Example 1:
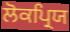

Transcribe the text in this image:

ਲੋਕਪ੍ਰਿਯ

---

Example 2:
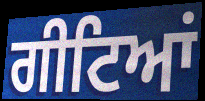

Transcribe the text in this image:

ਗੀਟਿਆਂ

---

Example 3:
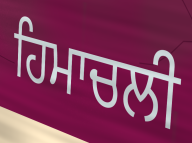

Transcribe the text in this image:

ਹਿਮਾਚਲੀ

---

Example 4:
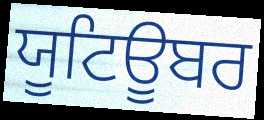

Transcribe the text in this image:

ਯੂਟਿਊਬਰ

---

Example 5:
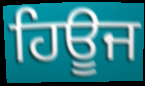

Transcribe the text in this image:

ਹਿਊਜ